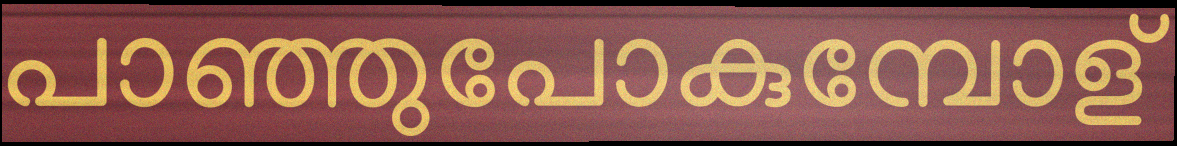
പാഞ്ഞുപോകുമ്പോള്